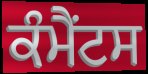
ਕੰਮੈਂਟਸ